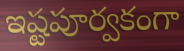
ఇష్టపూర్వకంగా